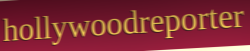
hollywoodreporter